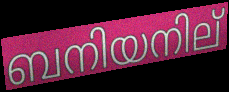
ബനിയനില്